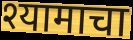
श्यामाचा